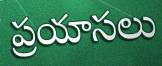
ప్రయాసలు